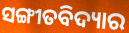
ସଙ୍ଗୀତବିଦ୍ୟାର